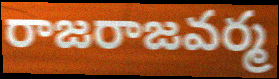
రాజరాజవర్మ